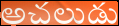
అచలుడు